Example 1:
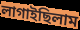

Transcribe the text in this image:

লাগাইছিলাম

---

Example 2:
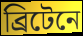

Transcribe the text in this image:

ব্রিটেনে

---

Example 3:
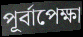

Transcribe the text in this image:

পূর্বাপেক্ষা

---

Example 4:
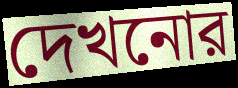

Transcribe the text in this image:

দেখনোর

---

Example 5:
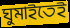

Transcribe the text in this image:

ঘুমাইতেই